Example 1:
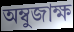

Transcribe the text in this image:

অম্বুজাক্ষ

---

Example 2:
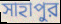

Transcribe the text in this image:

সাহাপুর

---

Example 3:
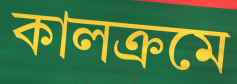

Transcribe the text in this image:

কালক্রমে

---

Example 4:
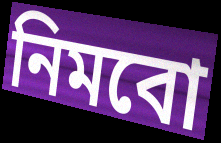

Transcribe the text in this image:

নিমবো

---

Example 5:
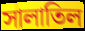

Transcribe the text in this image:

সালাতিল